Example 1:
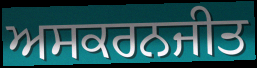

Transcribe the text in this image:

ਅਸਕਰਨਜੀਤ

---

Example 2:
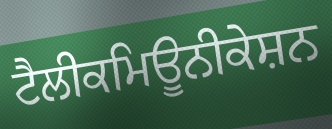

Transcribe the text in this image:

ਟੈਲੀਕਮਿਊਨੀਕੇਸ਼ਨ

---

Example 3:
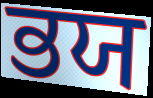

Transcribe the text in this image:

ਭਯ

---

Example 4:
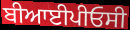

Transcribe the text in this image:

ਬੀਆਈਪੀਓਸੀ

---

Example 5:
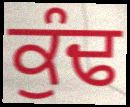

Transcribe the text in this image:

ਕੁੰਢ